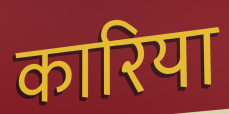
कारिया